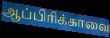
ஆப்பிரிக்காவை